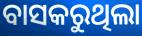
ବାସକରୁଥିଲା